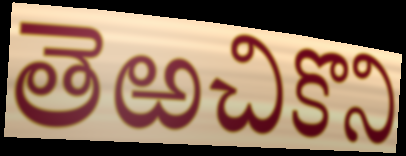
తెఱచికొని